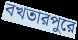
বখতারপুরে